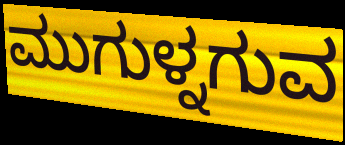
ಮುಗುಳ್ನಗುವ